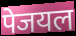
पेजयल